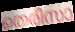
തെരീസാ